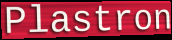
Plastron